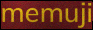
memuji